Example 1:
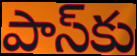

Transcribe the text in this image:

పాస్‌కు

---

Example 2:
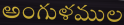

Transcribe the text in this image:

అంగుళముల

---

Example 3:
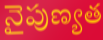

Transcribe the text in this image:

నైపుణ్యత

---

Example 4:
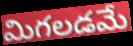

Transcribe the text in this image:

మిగలడమే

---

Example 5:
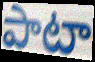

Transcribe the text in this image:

పాటా